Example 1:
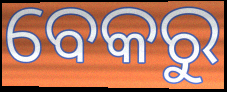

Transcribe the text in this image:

ବେକରୁ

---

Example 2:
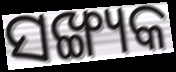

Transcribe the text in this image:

ସଙ୍ଖ୍ୟକ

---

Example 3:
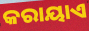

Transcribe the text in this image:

କରାୟାଏ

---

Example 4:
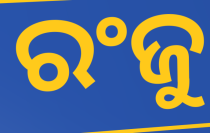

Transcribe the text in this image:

ରଂଜୁ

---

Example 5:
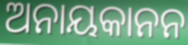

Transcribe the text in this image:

ଅନାୟକାନନ